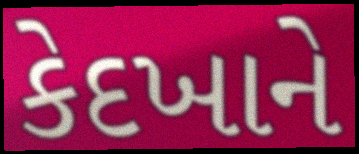
કેદખાને